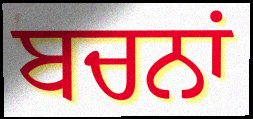
ਬਚਨਾਂ